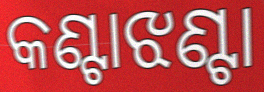
କଣ୍ଟାଝଣ୍ଟା